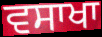
ਵਸਾਖਾ